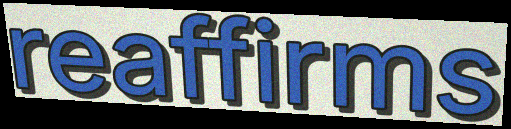
reaffirms